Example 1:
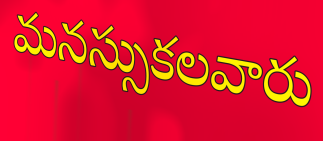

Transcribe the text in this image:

మనస్సుకలవారు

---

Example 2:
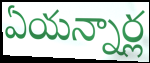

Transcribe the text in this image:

ఏయన్నార్ల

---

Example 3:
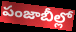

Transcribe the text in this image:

పంజాబీల్లో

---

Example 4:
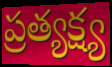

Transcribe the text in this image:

ప్రత్యక్ష్య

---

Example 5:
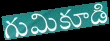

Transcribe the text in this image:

గుమికూడి